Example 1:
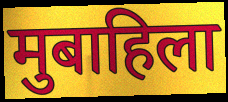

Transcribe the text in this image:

मुबाहिला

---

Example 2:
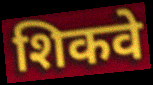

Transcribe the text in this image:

शिकवे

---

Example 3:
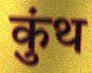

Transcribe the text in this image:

कुंथ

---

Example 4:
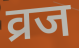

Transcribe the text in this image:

व्रज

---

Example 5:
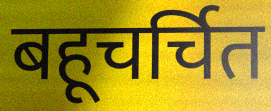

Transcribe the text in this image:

बहूचर्चित